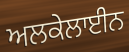
ਅਲਕੇਲਾਈਨ